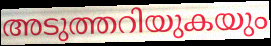
അടുത്തറിയുകയും